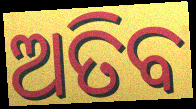
ଅତିବ